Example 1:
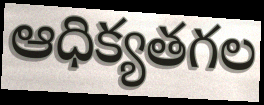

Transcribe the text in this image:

ఆధిక్యతగల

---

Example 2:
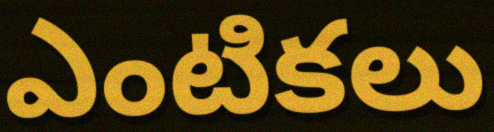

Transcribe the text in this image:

ఎంటికలు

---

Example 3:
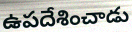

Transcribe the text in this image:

ఉపదేశించాడు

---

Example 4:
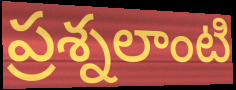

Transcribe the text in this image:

ప్రశ్నలాంటి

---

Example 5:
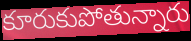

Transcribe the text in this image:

కూరుకుపోతున్నారు